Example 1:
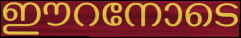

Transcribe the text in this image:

ഈറനോടെ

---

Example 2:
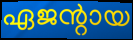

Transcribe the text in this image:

ഏജന്റായ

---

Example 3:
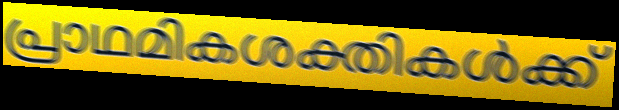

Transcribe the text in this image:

പ്രാഥമികശക്തികൾക്ക്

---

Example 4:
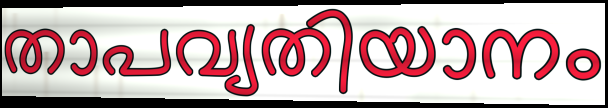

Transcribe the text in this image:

താപവ്യതിയാനം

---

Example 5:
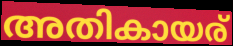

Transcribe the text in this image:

അതികായര്